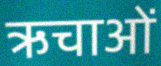
ऋचाओं